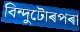
বিন্দুটোৰপৰা